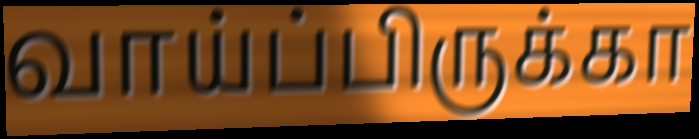
வாய்ப்பிருக்கா